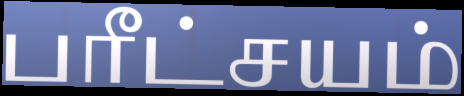
பரீட்சயம்